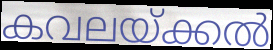
കവലയ്ക്കൽ